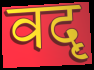
वदृ